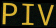
PIV